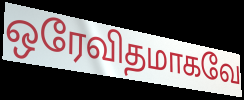
ஒரேவிதமாகவே